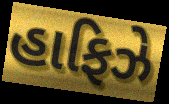
હાફિઝે